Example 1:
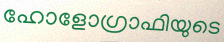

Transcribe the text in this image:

ഹോളോഗ്രാഫിയുടെ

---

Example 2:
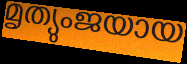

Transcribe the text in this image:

മൃത്യുംജയായ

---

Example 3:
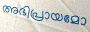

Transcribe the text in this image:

അഭിപ്രായമോ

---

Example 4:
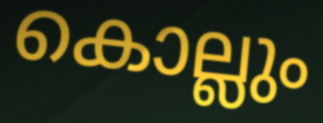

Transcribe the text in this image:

കൊല്ലും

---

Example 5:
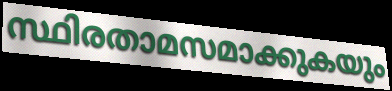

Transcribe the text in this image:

സ്ഥിരതാമസമാക്കുകയും